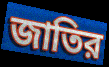
জাতির